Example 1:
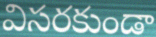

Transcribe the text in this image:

విసరకుండా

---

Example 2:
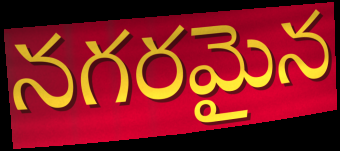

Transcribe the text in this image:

నగరమైన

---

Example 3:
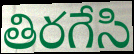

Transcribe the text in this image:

తిరగేసి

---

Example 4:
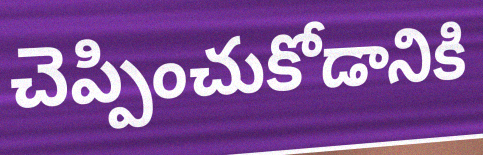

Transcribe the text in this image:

చెప్పించుకోడానికి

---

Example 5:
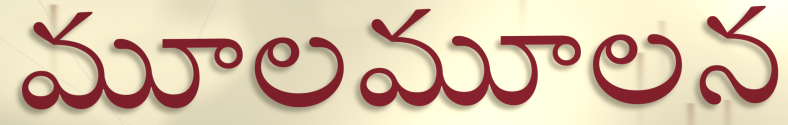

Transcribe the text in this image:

మూలమూలన